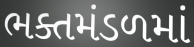
ભક્તમંડળમાં